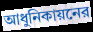
আধুনিকায়নের